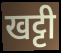
खट्टी